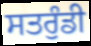
ਸਤਰੁੰਡੀ